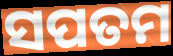
ସପତମ